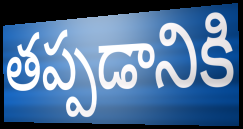
తప్పడానికి